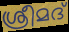
ശ്രീമദ്